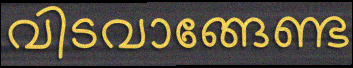
വിടവാങ്ങേണ്ട